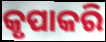
କୃପାକରି